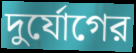
দুর্যোগের